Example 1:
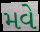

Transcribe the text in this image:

મવે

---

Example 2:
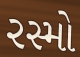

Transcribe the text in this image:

રસ્મો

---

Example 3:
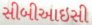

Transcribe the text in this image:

સીબીઆઇસી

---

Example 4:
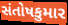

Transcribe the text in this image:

સંતોષકુમાર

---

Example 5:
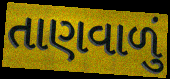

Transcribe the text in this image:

તાણવાળું